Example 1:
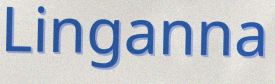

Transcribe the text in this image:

Linganna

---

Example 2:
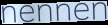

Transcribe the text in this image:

nennen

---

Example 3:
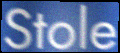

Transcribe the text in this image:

Stole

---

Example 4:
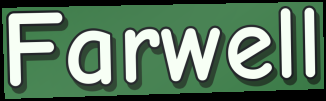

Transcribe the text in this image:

Farwell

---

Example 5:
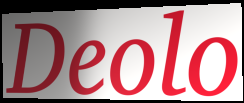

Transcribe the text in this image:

Deolo